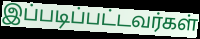
இப்படிப்பட்டவர்கள்